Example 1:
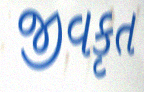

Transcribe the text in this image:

જીવકૃત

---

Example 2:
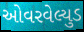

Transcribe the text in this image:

ઓવરવેલ્યુડ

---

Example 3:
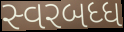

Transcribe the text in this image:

સ્વરબધ્ધ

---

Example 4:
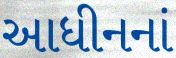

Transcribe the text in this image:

આધીનનાં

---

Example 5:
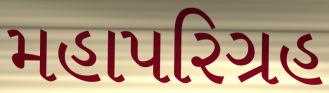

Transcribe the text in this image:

મહાપરિગ્રહ